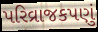
પરિવ્રાજકપણું